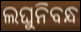
ଲଘୁନିବନ୍ଧ